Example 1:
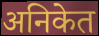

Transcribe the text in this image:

अनिकेत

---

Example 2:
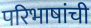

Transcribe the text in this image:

परिभाषांची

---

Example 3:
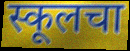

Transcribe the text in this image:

स्कूलचा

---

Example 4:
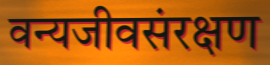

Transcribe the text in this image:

वन्यजीवसंरक्षण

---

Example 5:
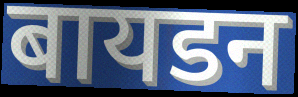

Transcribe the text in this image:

बायडन